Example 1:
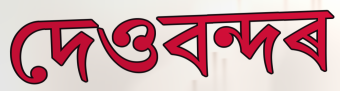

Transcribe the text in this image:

দেওবন্দৰ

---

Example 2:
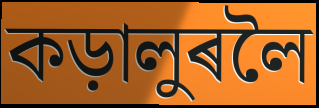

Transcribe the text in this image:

কড়ালুৰলৈ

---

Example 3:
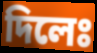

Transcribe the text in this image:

দিলেঃ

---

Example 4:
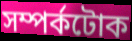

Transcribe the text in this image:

সম্পৰ্কটোক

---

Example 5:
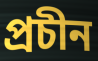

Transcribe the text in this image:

প্ৰচীন